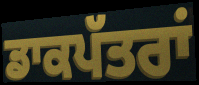
ਡਾਕਪੱਤਰਾਂ